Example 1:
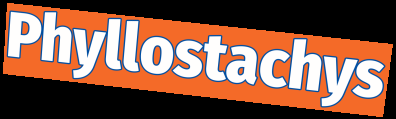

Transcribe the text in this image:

Phyllostachys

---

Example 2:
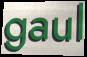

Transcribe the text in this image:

gaul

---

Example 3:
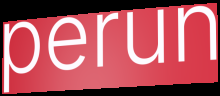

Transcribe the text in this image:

perun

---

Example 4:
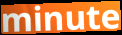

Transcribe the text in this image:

minute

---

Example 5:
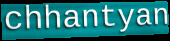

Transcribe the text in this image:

chhantyan